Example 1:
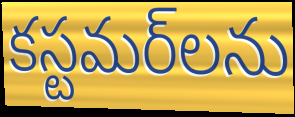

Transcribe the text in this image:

కస్టమర్‌లను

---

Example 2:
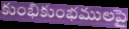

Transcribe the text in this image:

కుంభికుంభములపై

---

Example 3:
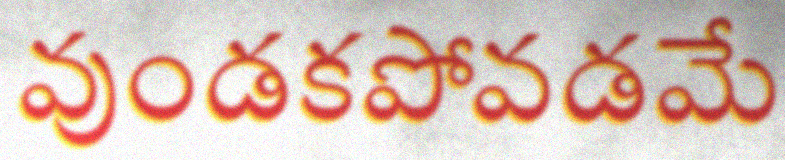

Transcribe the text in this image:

వుండకపోవడమే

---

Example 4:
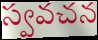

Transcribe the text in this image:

స్వవచన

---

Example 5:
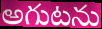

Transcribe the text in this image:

అగుటను